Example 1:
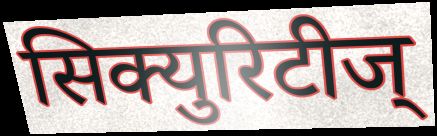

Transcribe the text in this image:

सिक्युरिटीज्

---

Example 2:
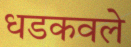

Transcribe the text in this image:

धडकवले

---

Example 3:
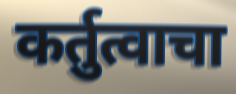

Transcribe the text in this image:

कर्तुत्वाचा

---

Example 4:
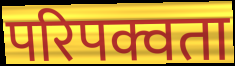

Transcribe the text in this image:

परिपक्‍वता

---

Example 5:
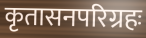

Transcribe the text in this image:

कृतासनपरिग्रहः